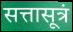
सत्तासूत्रं